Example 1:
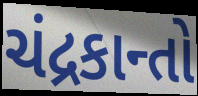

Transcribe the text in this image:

ચંદ્રકાન્તો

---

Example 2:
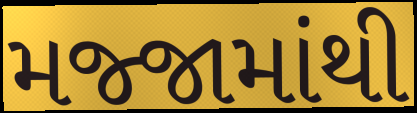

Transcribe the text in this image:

મજ્જામાંથી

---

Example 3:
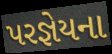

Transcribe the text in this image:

પરજ્ઞેયના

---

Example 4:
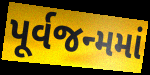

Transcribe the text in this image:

પૂર્વજન્મમાં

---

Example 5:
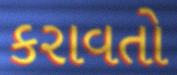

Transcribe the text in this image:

કરાવતો